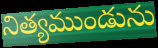
నిత్యముండును